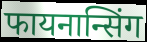
फायनान्सिंग